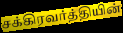
சக்கிரவர்த்தியின்